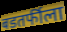
बडतर्फीला